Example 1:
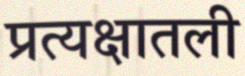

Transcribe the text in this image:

प्रत्यक्षातली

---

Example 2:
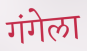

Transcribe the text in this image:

गंगेला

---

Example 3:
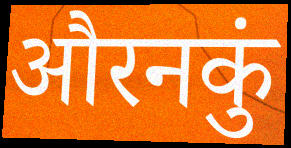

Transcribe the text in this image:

औरनकुं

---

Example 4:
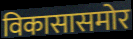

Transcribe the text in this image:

विकासासमोर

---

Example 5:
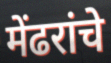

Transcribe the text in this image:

मेंढरांचे